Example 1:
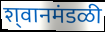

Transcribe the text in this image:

श्वानमंडळी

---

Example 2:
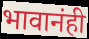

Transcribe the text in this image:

भावानंही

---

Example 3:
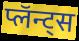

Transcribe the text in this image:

प्लॅन्ट्स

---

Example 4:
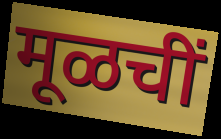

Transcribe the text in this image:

मूळचीं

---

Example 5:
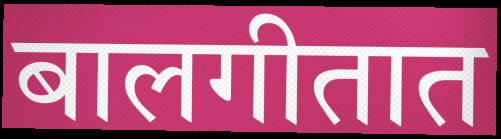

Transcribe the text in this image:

बालगीतात